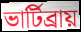
ভার্টিব্রায়